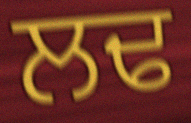
ਲਢ